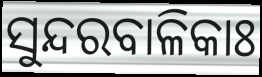
ସୁନ୍ଦରବାଳିକାଃ